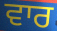
ਵਾਰ